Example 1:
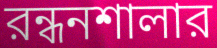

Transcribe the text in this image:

রন্ধনশালার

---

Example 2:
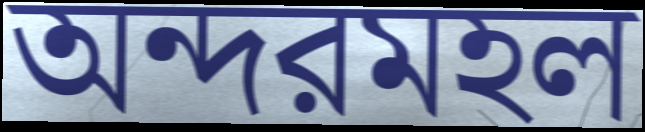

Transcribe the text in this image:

অন্দরমহল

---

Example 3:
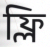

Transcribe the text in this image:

ফ্লি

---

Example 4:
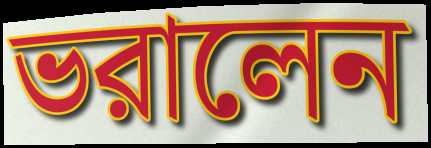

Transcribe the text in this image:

ভরালেন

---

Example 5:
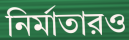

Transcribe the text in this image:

নির্মাতারও